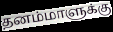
தனம்மாளுக்கு